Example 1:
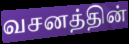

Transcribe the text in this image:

வசனத்தின்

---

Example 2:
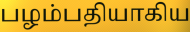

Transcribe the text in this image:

பழம்பதியாகிய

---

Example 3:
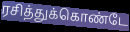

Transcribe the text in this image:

ரசித்துக்கொண்டே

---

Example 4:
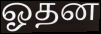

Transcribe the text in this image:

ஓதன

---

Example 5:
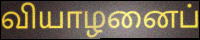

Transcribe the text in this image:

வியாழனைப்